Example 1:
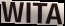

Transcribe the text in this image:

WITA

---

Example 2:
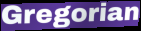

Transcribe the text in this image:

Gregorian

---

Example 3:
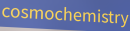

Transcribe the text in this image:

cosmochemistry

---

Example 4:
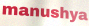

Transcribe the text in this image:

manushya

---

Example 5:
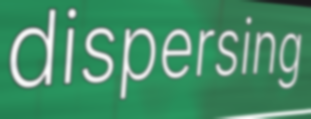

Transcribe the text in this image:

dispersing